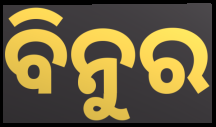
ବିନୁର